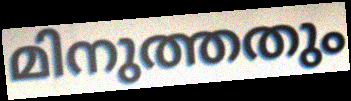
മിനുത്തതും